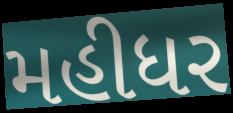
મહીધર